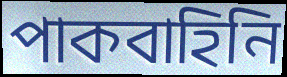
পাকবাহিনি